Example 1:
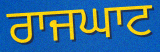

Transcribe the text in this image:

ਰਾਜਘਾਟ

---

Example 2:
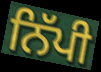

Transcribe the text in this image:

ਨਿੱਪੀ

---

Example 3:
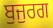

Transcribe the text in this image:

ਬੁਜੁਰਗ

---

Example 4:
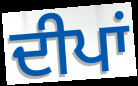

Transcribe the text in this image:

ਦੀਪਾਂ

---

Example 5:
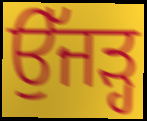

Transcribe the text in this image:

ਉੱਜੜ੍ਹ